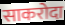
साकरोदा